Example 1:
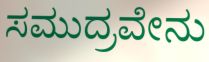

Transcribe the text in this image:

ಸಮುದ್ರವೇನು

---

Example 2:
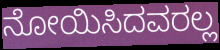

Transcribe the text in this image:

ನೋಯಿಸಿದವರಲ್ಲ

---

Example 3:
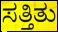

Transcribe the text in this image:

ಸತ್ತಿತು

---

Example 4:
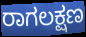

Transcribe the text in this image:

ರಾಗಲಕ್ಷಣ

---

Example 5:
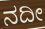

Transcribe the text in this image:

ನದೀ